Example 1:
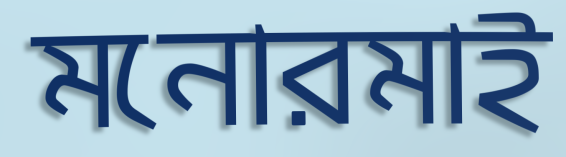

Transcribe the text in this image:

মনোরমাই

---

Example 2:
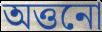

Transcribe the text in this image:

অত্তনো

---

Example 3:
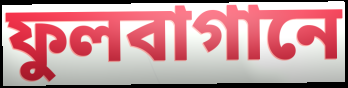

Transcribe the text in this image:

ফুলবাগানে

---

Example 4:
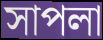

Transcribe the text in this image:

সাপলা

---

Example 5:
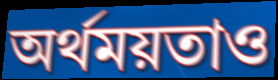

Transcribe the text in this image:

অর্থময়তাও